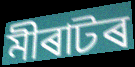
মীৰাটৰ